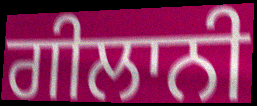
ਗੀਲਾਨੀ